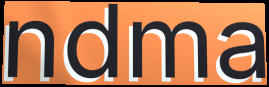
ndma